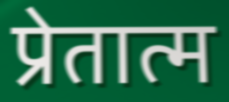
प्रेतात्म